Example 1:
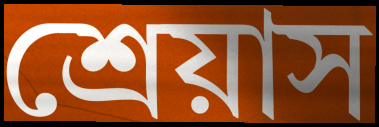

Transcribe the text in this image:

শ্রেয়াস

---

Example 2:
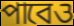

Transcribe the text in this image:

পাবেও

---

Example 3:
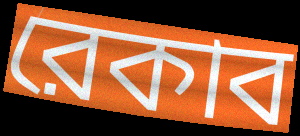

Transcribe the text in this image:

রেকাব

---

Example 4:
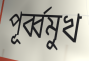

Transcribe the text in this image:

পূর্ব্বমুখ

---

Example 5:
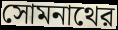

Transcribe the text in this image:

সোমনাথের